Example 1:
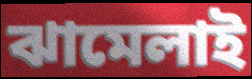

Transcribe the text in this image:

ঝামেলাই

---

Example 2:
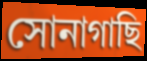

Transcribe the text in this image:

সোনাগাছি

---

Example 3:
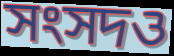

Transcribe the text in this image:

সংসদও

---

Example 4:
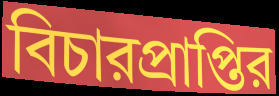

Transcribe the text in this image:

বিচারপ্রাপ্তির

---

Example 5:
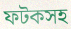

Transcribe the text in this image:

ফটকসহ